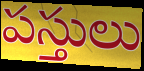
పస్తులు